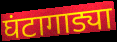
घंटागाड्या